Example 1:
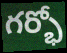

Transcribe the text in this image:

గర్భో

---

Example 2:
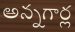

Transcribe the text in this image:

అన్నగార్ల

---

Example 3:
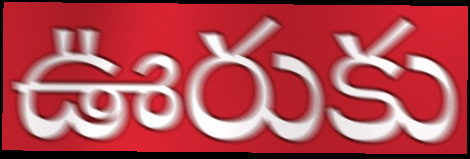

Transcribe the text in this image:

ఊరుకు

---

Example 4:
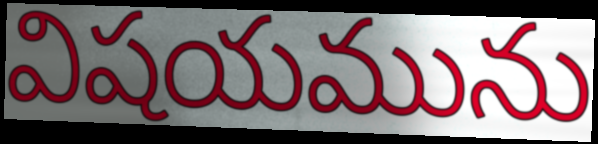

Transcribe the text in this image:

విషయమును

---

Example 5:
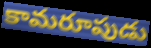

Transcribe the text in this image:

కామరూపుడు